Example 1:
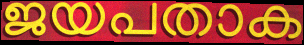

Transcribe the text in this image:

ജയപതാക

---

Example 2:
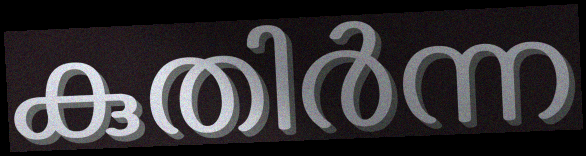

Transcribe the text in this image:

കുതിർന്ന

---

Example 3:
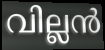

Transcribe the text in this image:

വില്ലൻ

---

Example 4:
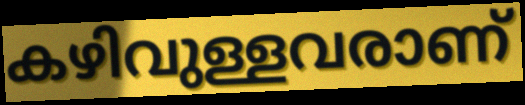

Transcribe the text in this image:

കഴിവുള്ളവരാണ്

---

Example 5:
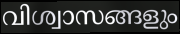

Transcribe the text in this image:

വിശ്വാസങ്ങളും